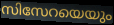
സിസേറയെയും